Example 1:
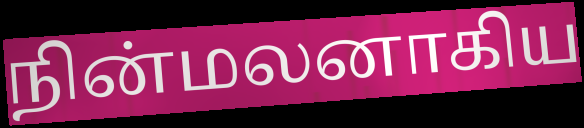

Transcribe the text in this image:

நின்மலனாகிய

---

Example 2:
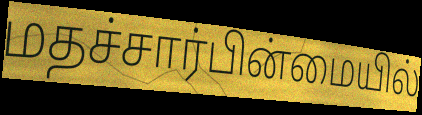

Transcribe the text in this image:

மதச்சார்பின்மையில்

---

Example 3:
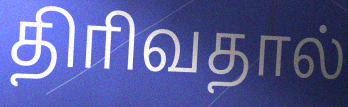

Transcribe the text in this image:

திரிவதால்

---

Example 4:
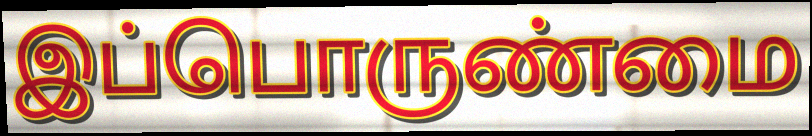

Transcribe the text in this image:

இப்பொருண்மை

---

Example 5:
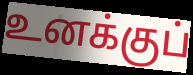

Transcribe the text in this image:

உனக்குப்